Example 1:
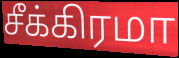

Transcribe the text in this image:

சீக்கிரமா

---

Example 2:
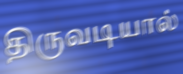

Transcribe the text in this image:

திருவடியால்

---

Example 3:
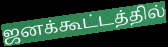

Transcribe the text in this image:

ஜனக்கூட்டத்தில்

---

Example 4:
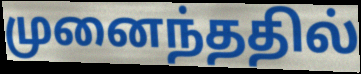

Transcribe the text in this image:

முனைந்ததில்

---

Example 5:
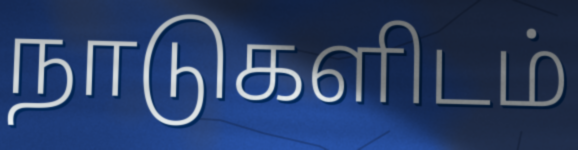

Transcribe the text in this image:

நாடுகளிடம்